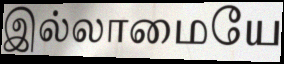
இல்லாமையே